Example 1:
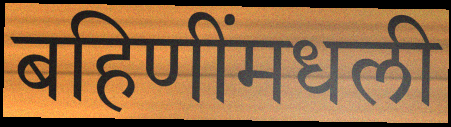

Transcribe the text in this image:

बहिणींमधली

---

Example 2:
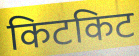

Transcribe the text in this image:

किटकिट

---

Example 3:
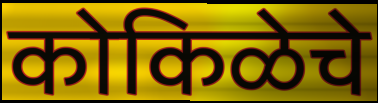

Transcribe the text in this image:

कोकिळेचे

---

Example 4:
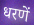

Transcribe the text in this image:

धरणें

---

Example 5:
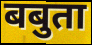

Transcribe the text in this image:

बबुता